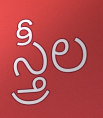
స్త్రీల